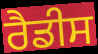
ਰੈਡੀਸ